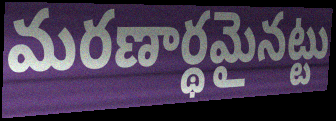
మరణార్థమైనట్టు